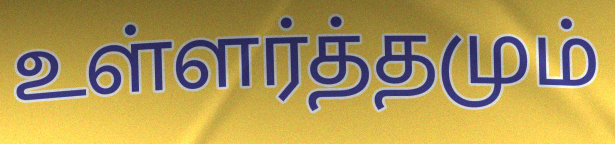
உள்ளர்த்தமும்